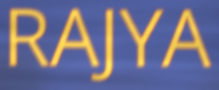
RAJYA